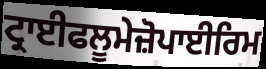
ਟ੍ਰਾਈਫਲੂਮੇਜ਼ੋਪਾਈਰਿਮ